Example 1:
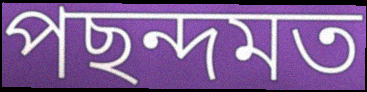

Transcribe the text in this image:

পছন্দমত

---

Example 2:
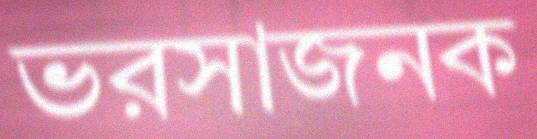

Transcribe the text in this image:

ভরসাজনক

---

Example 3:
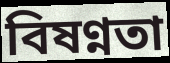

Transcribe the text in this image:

বিষণ্নতা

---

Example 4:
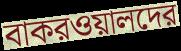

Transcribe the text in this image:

বাকরওয়ালদের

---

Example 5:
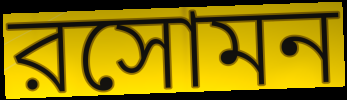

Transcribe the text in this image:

রসোমন